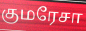
குமரேசா